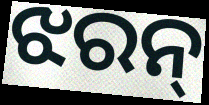
ଝରନ୍